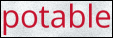
potable